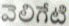
వెలిగేటి